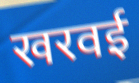
खरवई